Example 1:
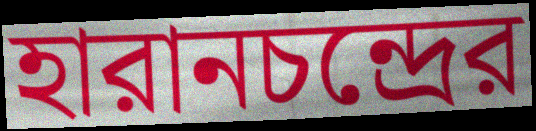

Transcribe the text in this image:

হারানচন্দ্রের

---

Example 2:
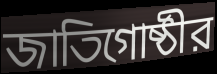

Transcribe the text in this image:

জাতিগোষ্ঠীর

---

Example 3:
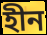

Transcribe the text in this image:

হীন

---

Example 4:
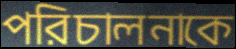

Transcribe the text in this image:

পরিচালনাকে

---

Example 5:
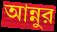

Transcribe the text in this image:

আন্নুর